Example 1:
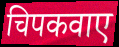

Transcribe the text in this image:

चिपकवाए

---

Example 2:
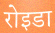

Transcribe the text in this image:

रोइडा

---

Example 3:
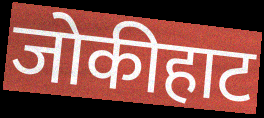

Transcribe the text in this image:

जोकीहाट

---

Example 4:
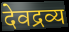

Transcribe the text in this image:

देवद्रव्य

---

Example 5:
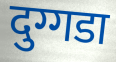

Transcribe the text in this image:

दुग्गडा